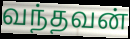
வந்தவன்